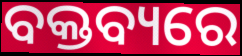
ବକ୍ତବ୍ୟରେ